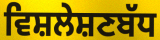
ਵਿਸ਼ਲੇਸ਼ਣਬੱਧ